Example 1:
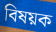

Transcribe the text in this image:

বিষয়ক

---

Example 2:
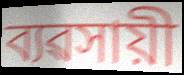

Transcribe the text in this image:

ব্যৱসায়ী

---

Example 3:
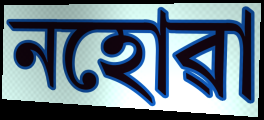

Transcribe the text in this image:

নহোৱা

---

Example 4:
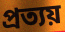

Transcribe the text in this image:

প্ৰত্যয়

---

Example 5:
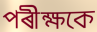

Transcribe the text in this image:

পৰীক্ষকে